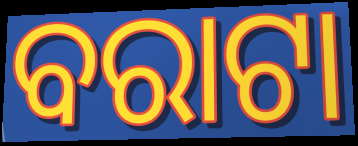
ବରାଟା